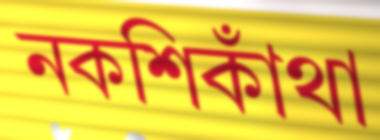
নকশিকাঁথা